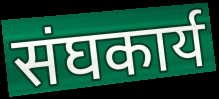
संघकार्य